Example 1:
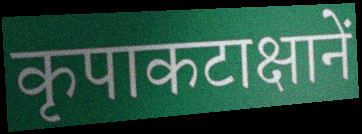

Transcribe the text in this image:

कृपाकटाक्षानें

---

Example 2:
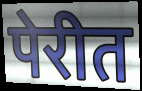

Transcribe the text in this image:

पेरीत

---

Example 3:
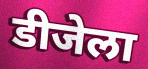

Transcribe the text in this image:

डीजेला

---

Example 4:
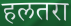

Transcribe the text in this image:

हलतरा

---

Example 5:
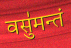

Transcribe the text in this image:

वसु॑मन्तं